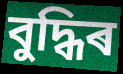
বুদ্ধিৰ